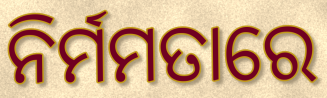
ନିର୍ମମତାରେ